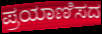
ಪ್ರಯಾಣಿಸದ